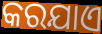
କରଯାଏ